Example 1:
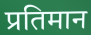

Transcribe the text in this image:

प्रतिमान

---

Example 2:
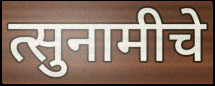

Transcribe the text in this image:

त्सुनामीचे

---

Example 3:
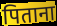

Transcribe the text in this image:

पिताना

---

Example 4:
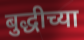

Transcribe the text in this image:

बुद्धीच्या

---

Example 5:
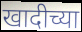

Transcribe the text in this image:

खादीच्या